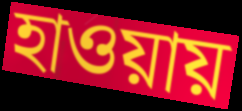
হাওয়ায়